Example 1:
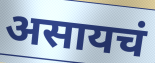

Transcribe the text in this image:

असायचं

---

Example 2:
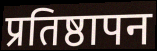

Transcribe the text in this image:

प्रतिष्ठापन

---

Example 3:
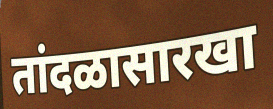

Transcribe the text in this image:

तांदळासारखा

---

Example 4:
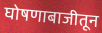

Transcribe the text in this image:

घोषणाबाजीतून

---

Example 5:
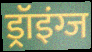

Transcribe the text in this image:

ड्रॉइंग्ज